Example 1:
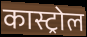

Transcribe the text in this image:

कास्ट्रोल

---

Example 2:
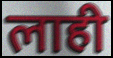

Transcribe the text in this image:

लाही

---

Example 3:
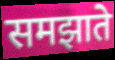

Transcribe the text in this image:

समझाते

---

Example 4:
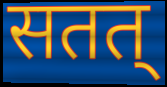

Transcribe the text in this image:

सतत्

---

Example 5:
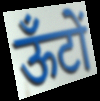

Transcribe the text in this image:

ऊँटों